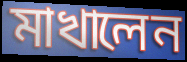
মাখালেন